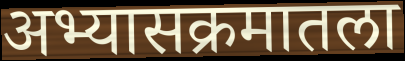
अभ्यासक्रमातला